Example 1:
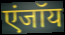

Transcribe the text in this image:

एंजॉय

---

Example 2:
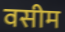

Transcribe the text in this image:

वसीम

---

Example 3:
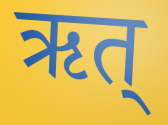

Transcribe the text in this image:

ऋत्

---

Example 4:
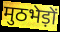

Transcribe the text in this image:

मुठभेड़ों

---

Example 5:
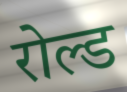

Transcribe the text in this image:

रोल्ड